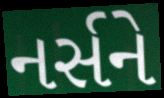
નર્સને